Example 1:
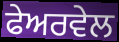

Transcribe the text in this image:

ਫੇਅਰਵੇਲ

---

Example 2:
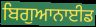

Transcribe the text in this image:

ਬਿਗੁਆਨਾਈਡ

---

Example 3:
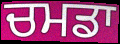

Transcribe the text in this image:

ਚਮਡਾ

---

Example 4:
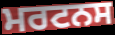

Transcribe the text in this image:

ਮਰਟਨਸ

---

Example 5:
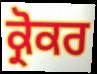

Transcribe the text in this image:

ਕ੍ਰੋਕਰ